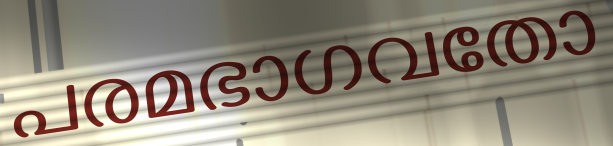
പരമഭാഗവതോ